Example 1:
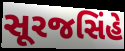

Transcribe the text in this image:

સૂરજસિંહે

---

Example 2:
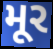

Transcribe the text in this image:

મૂર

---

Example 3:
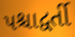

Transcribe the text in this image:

પશ્ચાદ્વર્તી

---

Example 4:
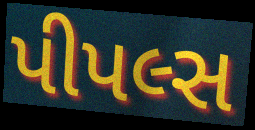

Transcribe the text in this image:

પીપલ્સ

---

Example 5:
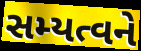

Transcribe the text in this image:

સમ્યત્વને